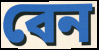
বেন